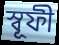
স্বূফী